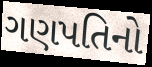
ગણપતિનો